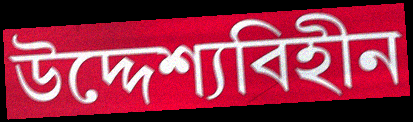
উদ্দেশ্যবিহীন